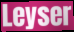
Leyser